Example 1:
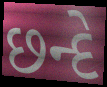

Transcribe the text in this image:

છન્દે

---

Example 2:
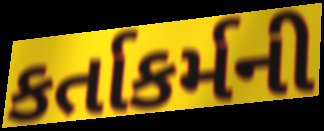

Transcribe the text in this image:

કર્તાકર્મની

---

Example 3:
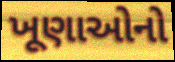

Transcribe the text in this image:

ખૂણાઓનો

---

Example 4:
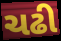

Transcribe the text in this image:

ચઢી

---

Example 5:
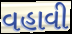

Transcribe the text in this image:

વહાવી